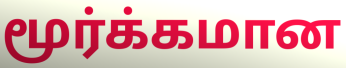
மூர்க்கமான